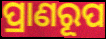
ପ୍ରାଣରୂପ